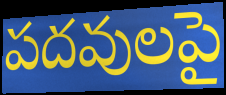
పదవులపై